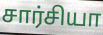
சார்சியா